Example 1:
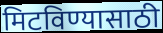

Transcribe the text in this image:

मिटविण्यासाठी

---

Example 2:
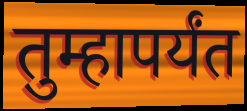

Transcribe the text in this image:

तुम्हापर्यंत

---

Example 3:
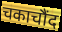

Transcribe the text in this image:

चकाचौंद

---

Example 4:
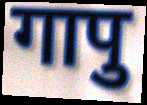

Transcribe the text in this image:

गापु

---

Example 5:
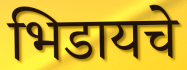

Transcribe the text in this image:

भिडायचे